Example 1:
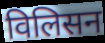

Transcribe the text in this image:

विलिसन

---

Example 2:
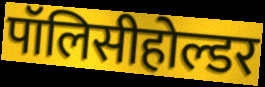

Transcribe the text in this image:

पॉलिसीहोल्डर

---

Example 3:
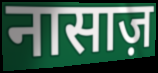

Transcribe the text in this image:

नासाज़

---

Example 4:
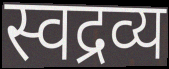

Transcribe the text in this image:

स्वद्रव्य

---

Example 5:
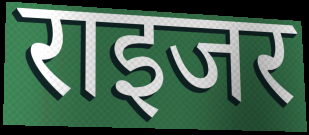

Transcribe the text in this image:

राइजर